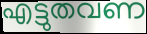
എട്ടുതവണ